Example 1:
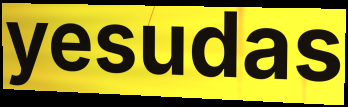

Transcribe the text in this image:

yesudas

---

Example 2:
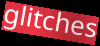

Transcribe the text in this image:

glitches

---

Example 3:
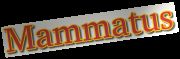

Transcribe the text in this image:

Mammatus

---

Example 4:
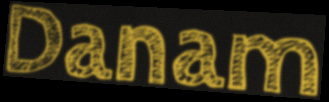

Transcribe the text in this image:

Danam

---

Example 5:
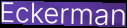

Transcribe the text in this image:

Eckerman